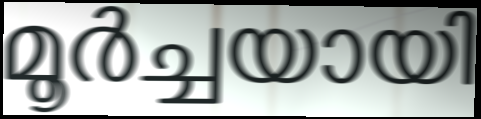
മൂർച്ചയായി